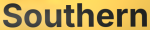
Southern